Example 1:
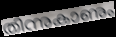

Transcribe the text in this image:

തിന്നുകാണും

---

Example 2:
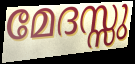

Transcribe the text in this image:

മേദസ്സു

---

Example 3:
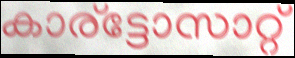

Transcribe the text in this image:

കാര്ട്ടോസാറ്റ്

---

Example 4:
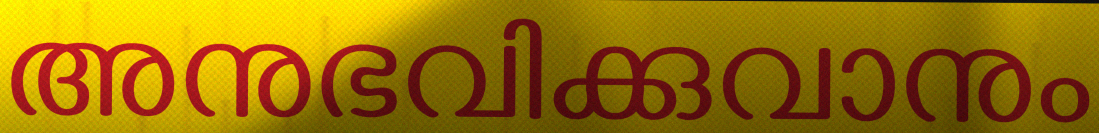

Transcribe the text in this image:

അനുഭവിക്കുവാനും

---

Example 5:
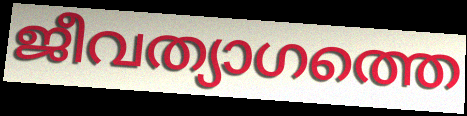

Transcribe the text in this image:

ജീവത്യാഗത്തെ